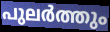
പുലർത്തും